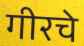
गीरचे